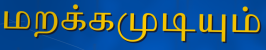
மறக்கமுடியும்